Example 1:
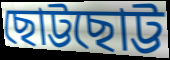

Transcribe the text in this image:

ছোট্টছোট্ট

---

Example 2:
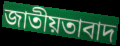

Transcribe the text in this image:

জাতীয়তাবাদ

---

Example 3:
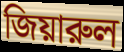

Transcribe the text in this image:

জিয়ারুল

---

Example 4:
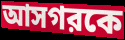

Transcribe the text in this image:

আসগরকে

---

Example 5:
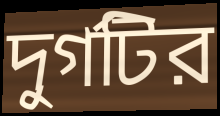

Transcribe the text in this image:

দুর্গটির